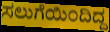
ಸಲುಗೆಯಿಂದಿದ್ದ